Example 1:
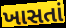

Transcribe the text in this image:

ખાસતાં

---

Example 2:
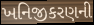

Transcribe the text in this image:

ખનિજીકરણની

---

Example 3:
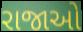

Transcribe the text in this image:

રાજાઓ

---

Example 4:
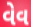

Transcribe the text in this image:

વેવ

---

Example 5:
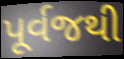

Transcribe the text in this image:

પૂર્વજથી